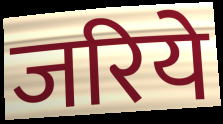
जरिये